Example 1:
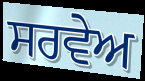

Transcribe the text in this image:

ਸਰਵੇਅ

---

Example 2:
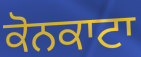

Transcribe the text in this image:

ਕੋਨਕਾਟਾ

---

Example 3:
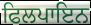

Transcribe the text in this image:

ਫਿਲਪਾਇਨ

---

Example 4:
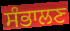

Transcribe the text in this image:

ਸੰਭਾਲਣ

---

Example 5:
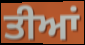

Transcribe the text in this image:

ਤੀਆਂ